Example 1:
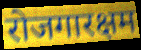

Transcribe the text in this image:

रोजगारक्षम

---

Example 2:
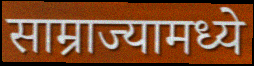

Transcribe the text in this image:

साम्राज्यामध्ये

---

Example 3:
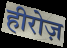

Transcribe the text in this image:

हीरोज़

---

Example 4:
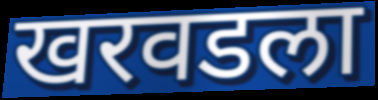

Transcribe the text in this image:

खरवडला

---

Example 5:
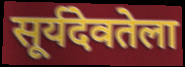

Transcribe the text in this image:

सूर्यदेवतेला